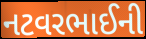
નટવરભાઈની